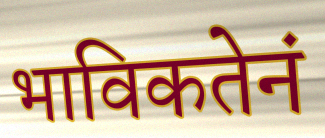
भाविकतेनं